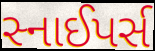
સ્નાઈપર્સ